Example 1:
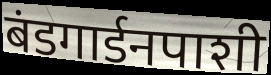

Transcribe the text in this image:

बंडगार्डनपाशी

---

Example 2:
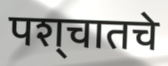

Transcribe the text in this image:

पश्चातचे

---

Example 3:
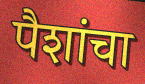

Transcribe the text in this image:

पैशांचा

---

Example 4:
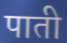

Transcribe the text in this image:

पाती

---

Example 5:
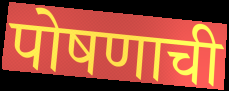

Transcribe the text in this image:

पोषणाची